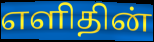
எளிதின்